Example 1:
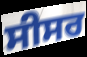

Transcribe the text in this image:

ਸੀਸਰ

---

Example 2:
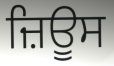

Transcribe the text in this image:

ਜ਼ਿਊਸ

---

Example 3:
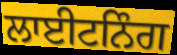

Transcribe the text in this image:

ਲਾਈਟਨਿੰਗ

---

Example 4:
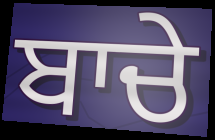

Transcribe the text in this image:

ਬਾਚੇ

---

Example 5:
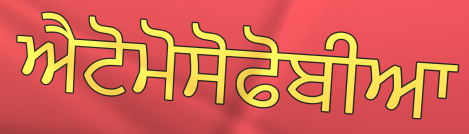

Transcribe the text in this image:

ਐਟੋਮੋਸੋਫੋਬੀਆ